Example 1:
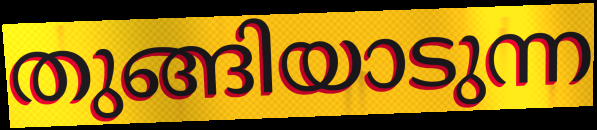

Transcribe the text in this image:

തുങ്ങിയാടുന്ന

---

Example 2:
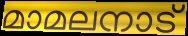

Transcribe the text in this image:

മാമലനാട്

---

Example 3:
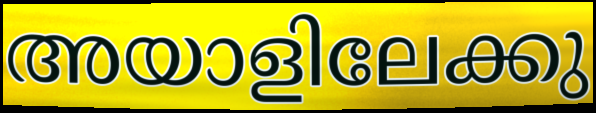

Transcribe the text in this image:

അയാളിലേക്കു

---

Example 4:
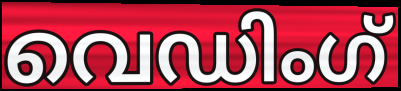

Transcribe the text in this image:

വെഡിംഗ്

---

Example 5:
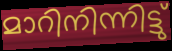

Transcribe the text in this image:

മാറിനിന്നിട്ടു്